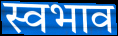
स्वभाव